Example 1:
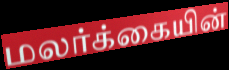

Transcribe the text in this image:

மலர்க்கையின்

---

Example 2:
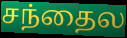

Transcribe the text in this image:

சந்தைல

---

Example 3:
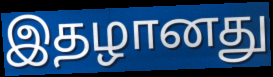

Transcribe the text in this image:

இதழானது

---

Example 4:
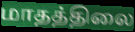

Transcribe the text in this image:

மாதத்திலை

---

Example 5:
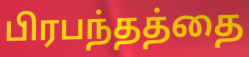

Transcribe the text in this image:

பிரபந்தத்தை